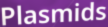
Plasmids